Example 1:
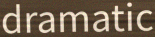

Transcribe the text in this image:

dramatic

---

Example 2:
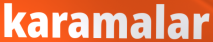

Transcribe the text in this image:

karamalar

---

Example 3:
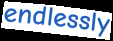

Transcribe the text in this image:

endlessly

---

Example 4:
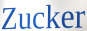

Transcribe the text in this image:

Zucker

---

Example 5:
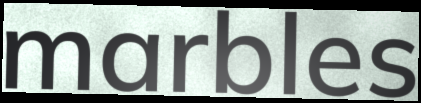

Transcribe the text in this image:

marbles